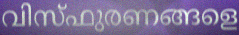
വിസ്ഫുരണങ്ങളെ